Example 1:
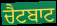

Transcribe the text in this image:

ਚੈਟਬਾਟ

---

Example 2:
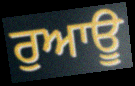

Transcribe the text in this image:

ਰੁਆਊ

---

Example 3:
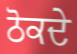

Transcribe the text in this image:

ਠੋਕਦੇ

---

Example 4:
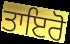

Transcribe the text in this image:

ਤਾਇਰੋ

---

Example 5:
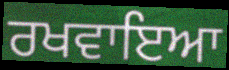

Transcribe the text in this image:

ਰਖਵਾਇਆ